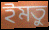
ইমতু